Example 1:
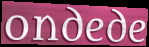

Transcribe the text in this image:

ondede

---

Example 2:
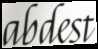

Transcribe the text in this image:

abdest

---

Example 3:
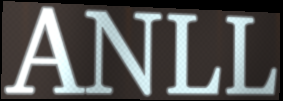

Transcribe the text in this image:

ANLL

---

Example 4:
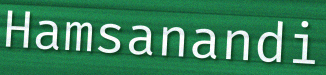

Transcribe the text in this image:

Hamsanandi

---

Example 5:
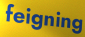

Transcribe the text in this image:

feigning